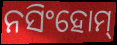
ନସିଂହୋମ୍